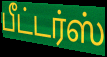
பீட்டர்ஸ்